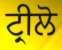
ਟ੍ਰੀਲੋ